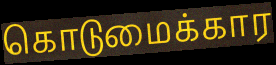
கொடுமைக்கார